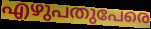
എഴുപതുപേരെ